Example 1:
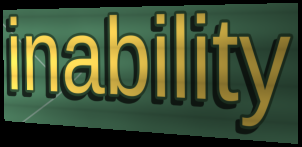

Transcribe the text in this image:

inability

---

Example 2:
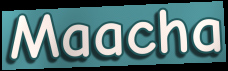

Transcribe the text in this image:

Maacha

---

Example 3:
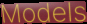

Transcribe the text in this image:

Models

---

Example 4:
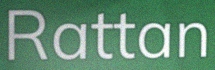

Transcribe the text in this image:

Rattan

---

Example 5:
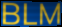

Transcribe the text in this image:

BLM